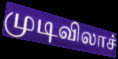
முடிவிலாச்